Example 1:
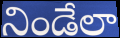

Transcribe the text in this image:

నిండేలా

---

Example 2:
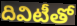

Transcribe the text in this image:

దివిటీతో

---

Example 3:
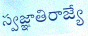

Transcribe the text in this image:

స్వజ్ఞాతిరాజ్యే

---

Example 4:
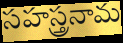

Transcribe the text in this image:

సహస్త్రనామ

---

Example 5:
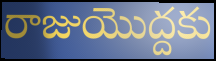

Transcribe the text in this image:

రాజుయొద్దకు